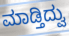
ಮಾಡ್ತಿದ್ವು